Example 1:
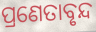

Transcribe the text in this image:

ପ୍ରଣେତାବୃନ୍ଦ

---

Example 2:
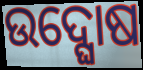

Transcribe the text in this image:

ଉଦ୍ଘୋଷ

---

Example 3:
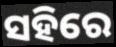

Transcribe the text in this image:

ସହିରେ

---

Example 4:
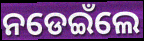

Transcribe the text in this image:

ନଡେଇଁଲେ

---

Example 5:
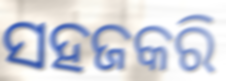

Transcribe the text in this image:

ସହଜକରି